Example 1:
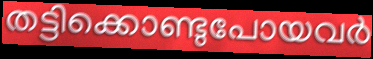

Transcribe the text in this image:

തട്ടിക്കൊണ്ടുപോയവർ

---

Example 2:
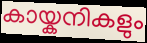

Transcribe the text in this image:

കായ്കനികളും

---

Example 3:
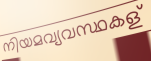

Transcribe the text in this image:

നിയമവ്യവസ്ഥകള്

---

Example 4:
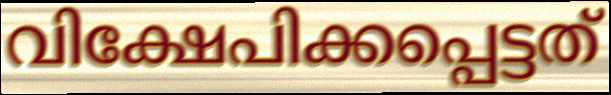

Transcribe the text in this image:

വിക്ഷേപിക്കപ്പെട്ടത്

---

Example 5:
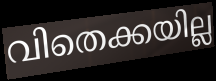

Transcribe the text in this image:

വിതെക്കയില്ല